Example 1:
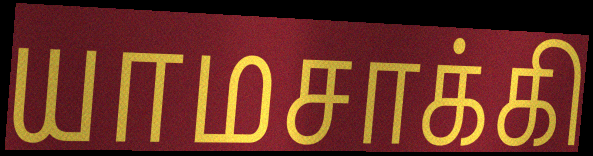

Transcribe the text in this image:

யாமசாக்கி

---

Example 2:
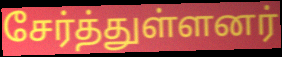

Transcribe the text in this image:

சேர்த்துள்ளனர்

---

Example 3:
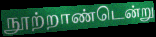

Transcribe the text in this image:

நூற்றாண்டென்று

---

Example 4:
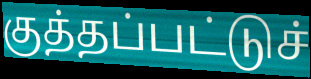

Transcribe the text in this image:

குத்தப்பட்டுச்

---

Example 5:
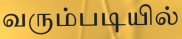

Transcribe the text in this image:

வரும்படியில்